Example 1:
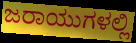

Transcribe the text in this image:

ಜರಾಯುಗಳಲ್ಲಿ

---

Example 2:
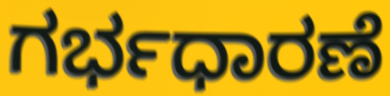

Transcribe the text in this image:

ಗರ್ಭಧಾರಣೆ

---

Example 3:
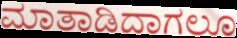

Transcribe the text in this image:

ಮಾತಾಡಿದಾಗಲೂ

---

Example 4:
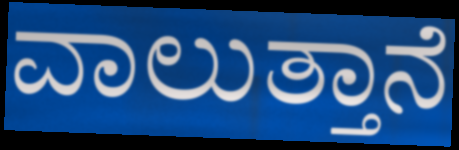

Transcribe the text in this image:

ವಾಲುತ್ತಾನೆ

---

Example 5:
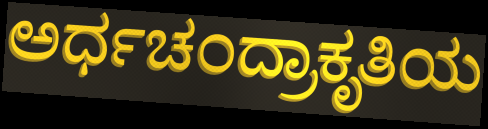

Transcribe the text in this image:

ಅರ್ಧಚಂದ್ರಾಕೃತಿಯ